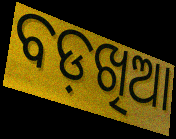
ବଡ଼ଖିଆ